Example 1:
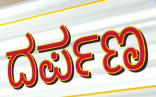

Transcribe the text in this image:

ದರ್ಪಣ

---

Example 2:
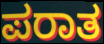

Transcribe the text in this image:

ಪರಾತ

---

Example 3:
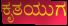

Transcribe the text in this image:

ಕೃತಯುಗ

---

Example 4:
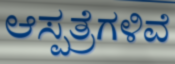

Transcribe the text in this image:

ಆಸ್ಪತ್ರೆಗಳಿವೆ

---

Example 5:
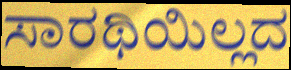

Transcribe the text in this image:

ಸಾರಥಿಯಿಲ್ಲದ